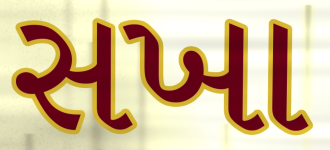
સખા